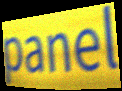
panel